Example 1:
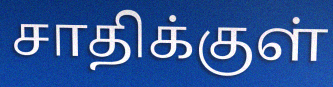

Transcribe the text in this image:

சாதிக்குள்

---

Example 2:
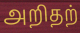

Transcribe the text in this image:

அறிதற்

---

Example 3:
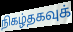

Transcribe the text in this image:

நிகழ்தகவுக்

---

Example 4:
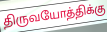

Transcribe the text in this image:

திருவயோத்திக்கு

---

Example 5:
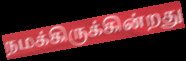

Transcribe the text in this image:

நமக்கிருக்கின்றது